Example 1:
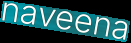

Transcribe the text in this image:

naveena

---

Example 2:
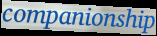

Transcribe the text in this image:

companionship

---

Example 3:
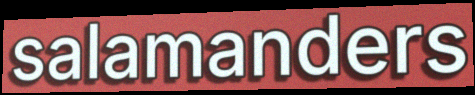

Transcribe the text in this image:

salamanders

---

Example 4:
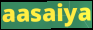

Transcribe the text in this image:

aasaiya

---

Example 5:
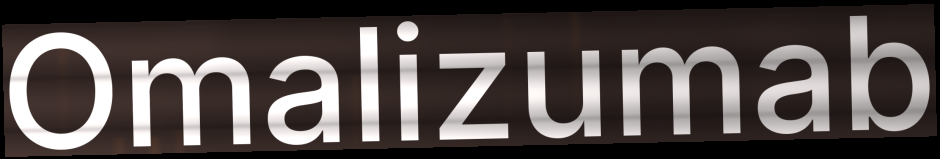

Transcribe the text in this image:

Omalizumab